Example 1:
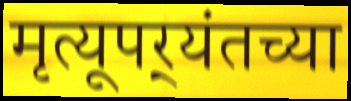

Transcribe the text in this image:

मृत्यूपर्यंतच्या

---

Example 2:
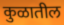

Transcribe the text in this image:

कुळातील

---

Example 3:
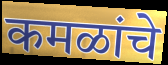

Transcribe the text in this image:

कमळांचे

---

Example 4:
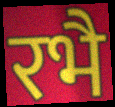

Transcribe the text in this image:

रभै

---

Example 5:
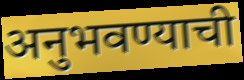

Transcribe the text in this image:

अनुभवण्याची